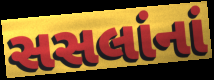
સસલાંનાં